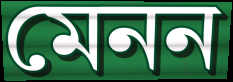
মেনন